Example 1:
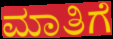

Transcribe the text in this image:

ಮಾತಿಗೆ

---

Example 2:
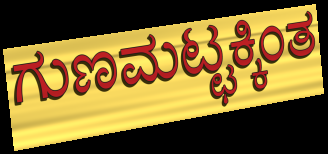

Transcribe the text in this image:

ಗುಣಮಟ್ಟಕ್ಕಿಂತ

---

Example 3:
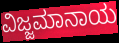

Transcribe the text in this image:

ವಿಜ್ಜಮಾನಾಯ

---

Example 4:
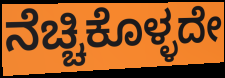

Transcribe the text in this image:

ನೆಚ್ಚಿಕೊಳ್ಳದೇ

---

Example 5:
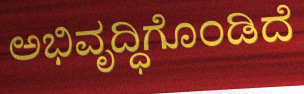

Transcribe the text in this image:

ಅಭಿವೃದ್ಧಿಗೊಂಡಿದೆ